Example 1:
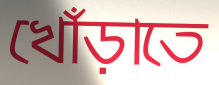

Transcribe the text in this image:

খোঁড়াতে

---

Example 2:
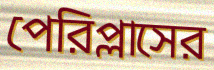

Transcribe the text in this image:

পেরিপ্লাসের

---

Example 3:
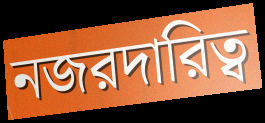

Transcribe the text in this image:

নজরদারিত্ব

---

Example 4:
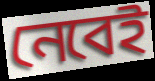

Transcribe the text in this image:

নেবেই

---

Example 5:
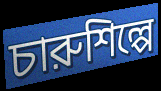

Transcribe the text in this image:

চারুশিল্পে